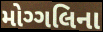
મોગ્ગલિના